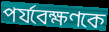
পর্যবেক্ষণকে